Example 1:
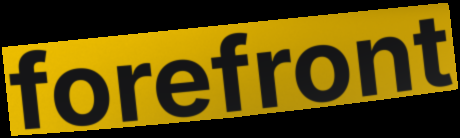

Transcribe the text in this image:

forefront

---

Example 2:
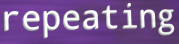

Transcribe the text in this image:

repeating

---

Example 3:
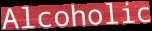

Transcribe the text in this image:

Alcoholic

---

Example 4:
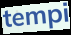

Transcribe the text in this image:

tempi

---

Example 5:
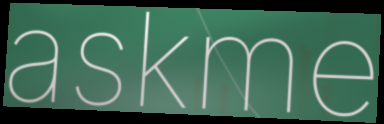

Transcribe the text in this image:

askme